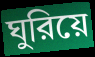
ঘুরিয়ে